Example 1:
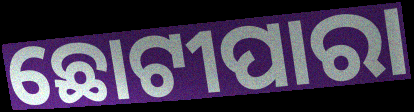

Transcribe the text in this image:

ଛୋଟୀପାରା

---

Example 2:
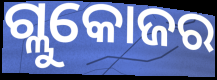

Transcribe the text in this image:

ଗ୍ଲୁକୋଜର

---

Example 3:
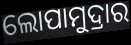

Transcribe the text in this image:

ଲୋପାମୁଦ୍ରାର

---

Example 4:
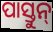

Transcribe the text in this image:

ପାସ୍ତୁନ୍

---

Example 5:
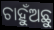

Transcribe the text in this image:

ଚାହୁଁଅଛୁ